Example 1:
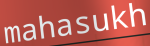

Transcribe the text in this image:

mahasukh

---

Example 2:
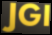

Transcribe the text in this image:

JGI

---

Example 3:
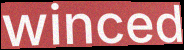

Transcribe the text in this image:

winced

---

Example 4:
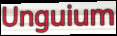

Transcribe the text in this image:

Unguium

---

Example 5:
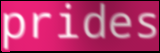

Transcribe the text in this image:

prides